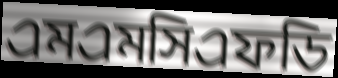
এমএমসিএফডি